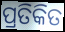
ପ୍ରତିକିତ